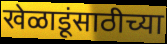
खेळाडूंसाठीच्या